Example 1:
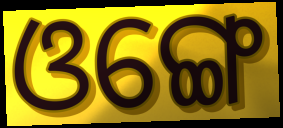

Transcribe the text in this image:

ଓଙ୍ଗେ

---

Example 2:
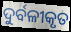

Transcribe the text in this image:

ଦୁର୍ବଳୀକୃତ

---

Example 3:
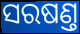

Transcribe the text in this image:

ସରଷଣ୍ତ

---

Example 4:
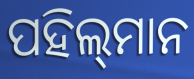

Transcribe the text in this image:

ପହିଲ୍‌ମାନ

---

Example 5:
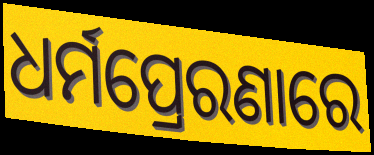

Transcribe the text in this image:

ଧର୍ମପ୍ରେରଣାରେ